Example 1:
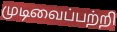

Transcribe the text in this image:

முடிவைப்பற்றி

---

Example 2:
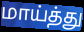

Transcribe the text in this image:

மாய்த்து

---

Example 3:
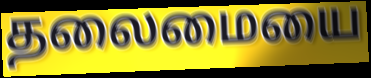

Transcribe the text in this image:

தலைமையை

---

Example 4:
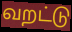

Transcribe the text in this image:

வறட்டு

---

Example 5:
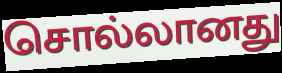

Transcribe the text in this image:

சொல்லானது